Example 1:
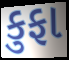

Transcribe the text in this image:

કુફા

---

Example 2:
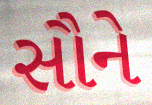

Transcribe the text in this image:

સૌને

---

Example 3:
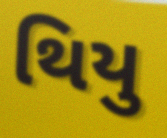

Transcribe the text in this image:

થિયુ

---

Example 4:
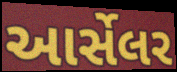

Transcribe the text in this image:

આર્સેલર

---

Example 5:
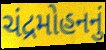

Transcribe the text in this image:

ચંદ્રમોહનનું